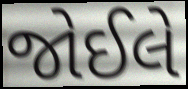
જોઈલે